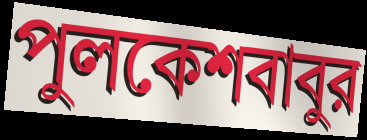
পুলকেশবাবুর